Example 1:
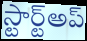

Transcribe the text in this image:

స్టార్ట్అప్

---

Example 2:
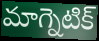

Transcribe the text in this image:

మాగ్నెటిక్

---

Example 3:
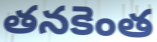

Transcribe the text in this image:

తనకెంత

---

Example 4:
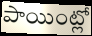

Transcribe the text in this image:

పాయింట్లో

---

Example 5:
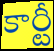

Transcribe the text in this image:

కార్టీ